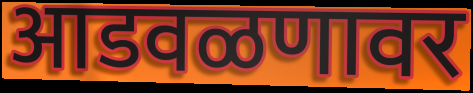
आडवळणावर